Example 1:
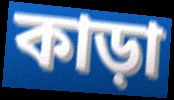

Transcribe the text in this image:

কাড়া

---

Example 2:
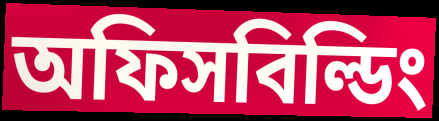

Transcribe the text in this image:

অফিসবিল্ডিং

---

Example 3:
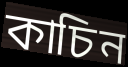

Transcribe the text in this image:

কাচিন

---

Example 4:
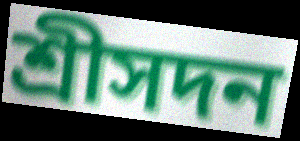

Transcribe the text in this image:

শ্রীসদন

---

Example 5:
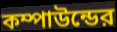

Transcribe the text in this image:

কম্পাউন্ডের